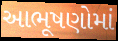
આભૂષણોમાં